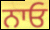
ਨਾਓ